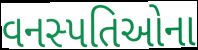
વનસ્પતિઓના